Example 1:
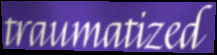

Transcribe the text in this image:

traumatized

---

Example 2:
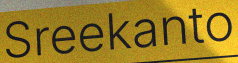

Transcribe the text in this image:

Sreekanto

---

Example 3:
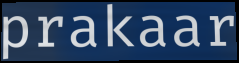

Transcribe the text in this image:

prakaar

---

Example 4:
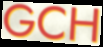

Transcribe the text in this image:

GCH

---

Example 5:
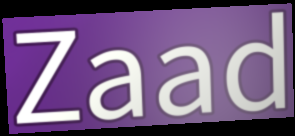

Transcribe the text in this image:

Zaad